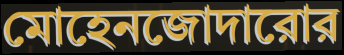
মোহেনজোদারোর